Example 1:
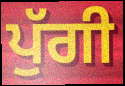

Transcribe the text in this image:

ਪੁੱਗੀ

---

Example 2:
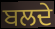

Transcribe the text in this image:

ਬਲਦੇ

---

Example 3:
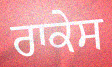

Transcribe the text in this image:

ਰਾਕੇਸ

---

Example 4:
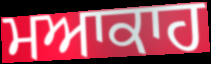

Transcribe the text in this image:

ਮਆਕਾਹ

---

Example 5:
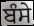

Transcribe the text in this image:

ਬੰਸੇ